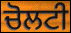
ਚੋਲਟੀ